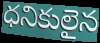
ధనికులైన